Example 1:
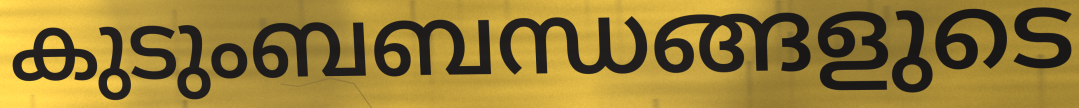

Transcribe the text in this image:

കുടുംബബന്ധങ്ങളുടെ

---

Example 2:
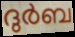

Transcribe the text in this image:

ദുർബ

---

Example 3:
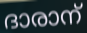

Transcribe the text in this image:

ദാരാന്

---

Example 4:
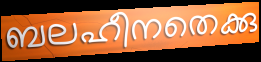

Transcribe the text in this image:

ബലഹീനതെക്കു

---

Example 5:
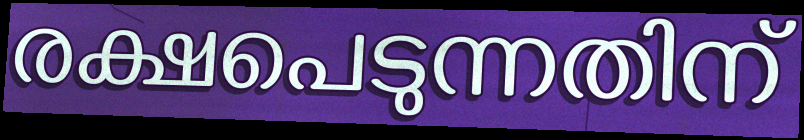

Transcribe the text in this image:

രക്ഷപെടുന്നതിന്